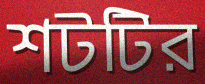
শটটির